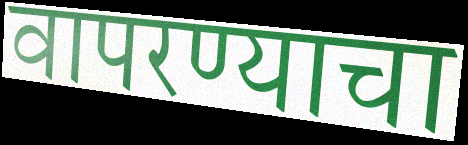
वापरण्याचा